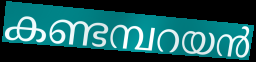
കണ്ടമ്പറയൻ